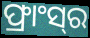
ଫ୍ରାଂସ୍‍ର